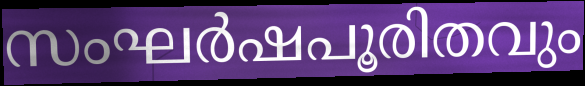
സംഘർഷപൂരിതവും